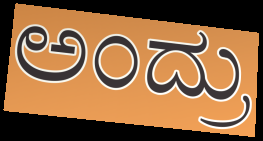
ಅಂದ್ರು